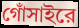
গোঁসাইরে